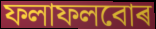
ফলাফলবোৰ